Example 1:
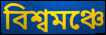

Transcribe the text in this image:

বিশ্বমঞ্চে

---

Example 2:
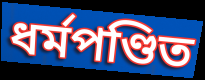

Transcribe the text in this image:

ধর্মপণ্ডিত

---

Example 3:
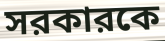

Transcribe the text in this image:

সরকারকে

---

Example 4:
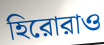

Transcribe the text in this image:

হিরোরাও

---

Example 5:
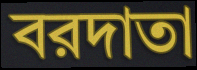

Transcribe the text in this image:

বরদাতা